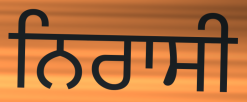
ਨਿਰਾਸੀ